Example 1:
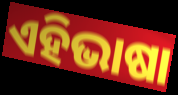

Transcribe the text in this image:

ଏହିଭାଷା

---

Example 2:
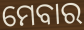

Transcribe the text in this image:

ମେବାର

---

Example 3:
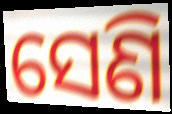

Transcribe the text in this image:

ସେଣି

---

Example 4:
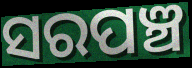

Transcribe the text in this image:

ସରପଞ୍ଚ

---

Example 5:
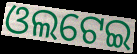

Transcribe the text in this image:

ଓଲଟେଇ